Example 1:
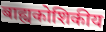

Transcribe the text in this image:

बाह्यकोशिकीय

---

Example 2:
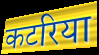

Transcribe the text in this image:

कटरिया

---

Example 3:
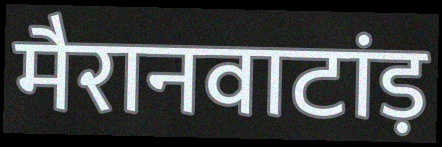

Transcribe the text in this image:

मैरानवाटांड़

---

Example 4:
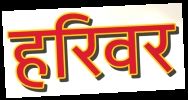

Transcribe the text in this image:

हरिवर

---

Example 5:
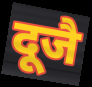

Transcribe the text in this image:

दूजै